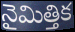
నైమిత్తిక